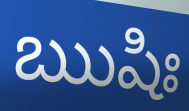
ఋషిః